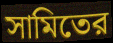
সামিতের